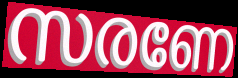
സരണേ